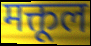
मक्तूल